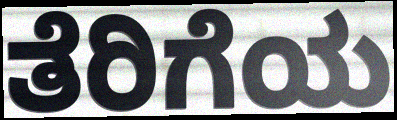
ತೆರಿಗೆಯ